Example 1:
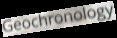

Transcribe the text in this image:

Geochronology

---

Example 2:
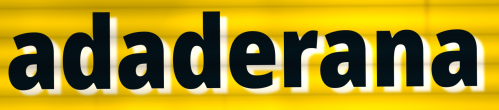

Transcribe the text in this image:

adaderana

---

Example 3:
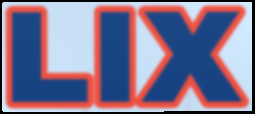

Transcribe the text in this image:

LIX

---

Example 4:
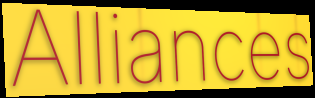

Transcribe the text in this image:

Alliances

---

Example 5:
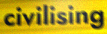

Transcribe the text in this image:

civilising